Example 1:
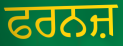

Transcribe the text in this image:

ਫਰਨਜ਼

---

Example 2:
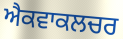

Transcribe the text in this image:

ਐਕਵਾਕਲਚਰ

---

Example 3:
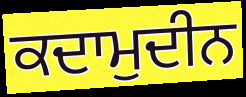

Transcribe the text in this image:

ਕਦਾਮੁਦੀਨ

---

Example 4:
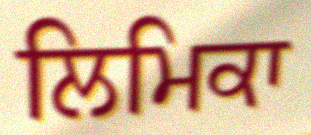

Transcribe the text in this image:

ਲਿਮਿਕਾ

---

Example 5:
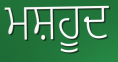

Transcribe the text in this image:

ਮਸ਼ਹੂਦ